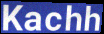
Kachh